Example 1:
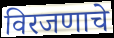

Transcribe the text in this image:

विरजणाचे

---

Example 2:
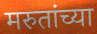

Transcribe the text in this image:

मरुतांच्या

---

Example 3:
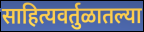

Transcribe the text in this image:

साहित्यवर्तुळातल्या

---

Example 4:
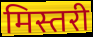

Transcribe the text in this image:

मिस्तरी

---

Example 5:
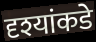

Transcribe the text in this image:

दृश्यांकडे